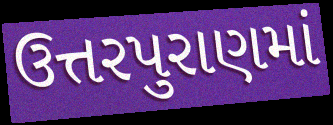
ઉત્તરપુરાણમાં